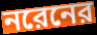
নরেনের